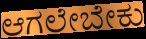
ಆಗಲೇಬೇಕು